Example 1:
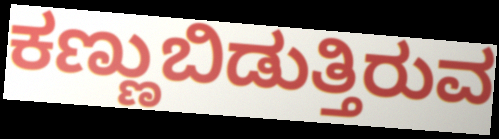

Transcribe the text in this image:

ಕಣ್ಣುಬಿಡುತ್ತಿರುವ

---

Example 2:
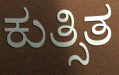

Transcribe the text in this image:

ಕುತ್ಸಿತ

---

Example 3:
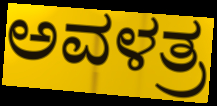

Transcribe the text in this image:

ಅವಳತ್ರ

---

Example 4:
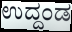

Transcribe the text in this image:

ಉದ್ದಂಡ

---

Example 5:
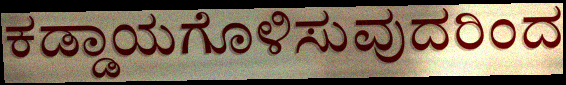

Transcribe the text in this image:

ಕಡ್ಡಾಯಗೊಳಿಸುವುದರಿಂದ